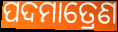
ପଦମାତ୍ରେଣ